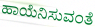
ಹಾಯೆನಿಸುವಂತೆ